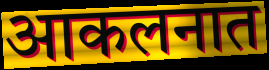
आकलनात